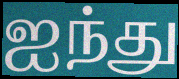
ஐந்து